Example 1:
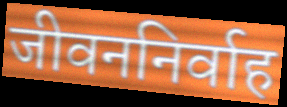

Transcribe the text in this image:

जीवननिर्वाह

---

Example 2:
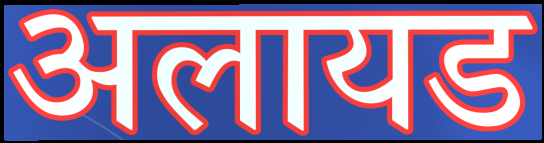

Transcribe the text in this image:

अलायड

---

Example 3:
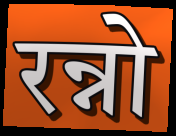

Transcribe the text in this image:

रन्नो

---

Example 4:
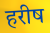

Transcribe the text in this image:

हरीष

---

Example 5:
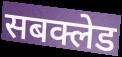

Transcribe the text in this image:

सबक्लेड